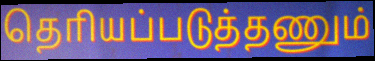
தெரியப்படுத்தணும்